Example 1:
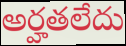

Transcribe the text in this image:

అర్హతలేదు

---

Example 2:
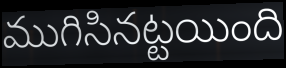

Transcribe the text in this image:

ముగిసినట్టయింది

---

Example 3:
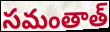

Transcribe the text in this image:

సమంతాత్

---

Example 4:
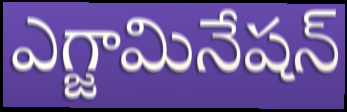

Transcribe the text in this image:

ఎగ్జామినేషన్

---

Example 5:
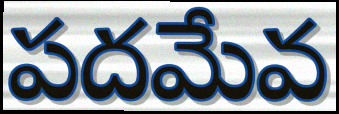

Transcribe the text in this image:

పదమేవ